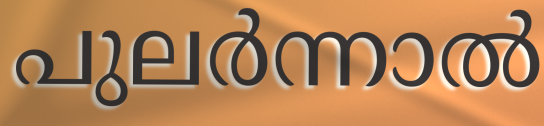
പുലർന്നാൽ